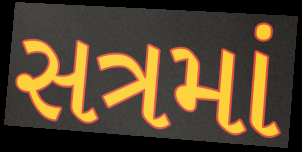
સત્રમાં